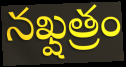
నఖ్షత్రం